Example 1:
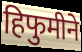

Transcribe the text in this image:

हिफुमीने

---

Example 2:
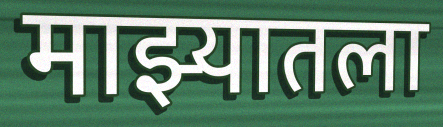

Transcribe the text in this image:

माझ्यातला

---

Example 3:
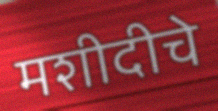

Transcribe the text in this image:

मशीदीचे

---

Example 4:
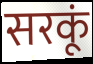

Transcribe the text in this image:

सरकूं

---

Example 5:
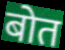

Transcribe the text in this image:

बोत